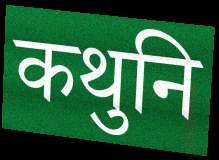
कथुनि